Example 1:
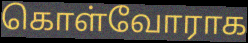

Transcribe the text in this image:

கொள்வோராக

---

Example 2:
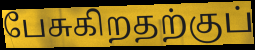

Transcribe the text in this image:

பேசுகிறதற்குப்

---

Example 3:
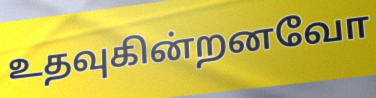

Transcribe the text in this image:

உதவுகின்றனவோ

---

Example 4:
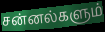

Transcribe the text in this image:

சன்னல்களும்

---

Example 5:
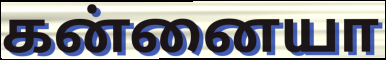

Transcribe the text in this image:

கன்னையா